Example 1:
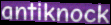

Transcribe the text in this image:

antiknock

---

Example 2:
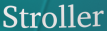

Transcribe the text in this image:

Stroller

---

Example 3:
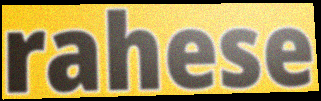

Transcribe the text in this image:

rahese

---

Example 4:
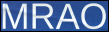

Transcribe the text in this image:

MRAO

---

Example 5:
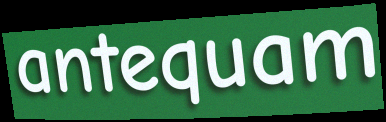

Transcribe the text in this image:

antequam